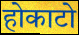
होकाटो